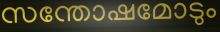
സന്തോഷമോടും